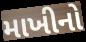
માખીનો